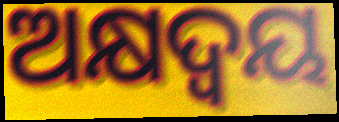
ଅକ୍ଷଦ୍ବୟ